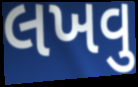
લખવુ